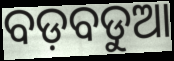
ବଡ଼ବଡୁଆ